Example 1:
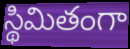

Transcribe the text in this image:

స్థిమితంగా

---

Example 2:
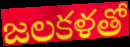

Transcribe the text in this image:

జలకళతో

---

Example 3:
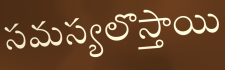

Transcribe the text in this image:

సమస్యలొస్తాయి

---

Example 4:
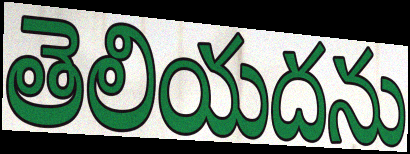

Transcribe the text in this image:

తెలియదను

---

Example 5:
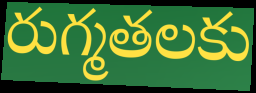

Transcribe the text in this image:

రుగ్మతలకు